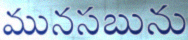
మునసబును